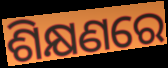
ଶିକ୍ଷଣରେ